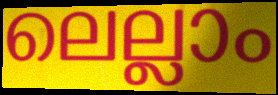
ലെല്ലാം